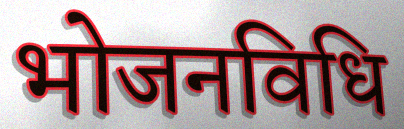
भोजनविधि